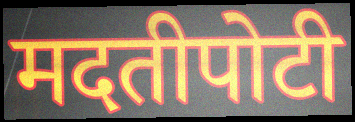
मदतीपोटी